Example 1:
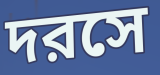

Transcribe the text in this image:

দরসে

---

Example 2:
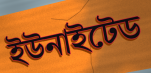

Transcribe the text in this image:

ইউনাইটেড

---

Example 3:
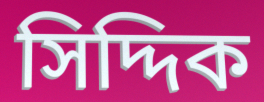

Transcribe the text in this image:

সিদ্দিক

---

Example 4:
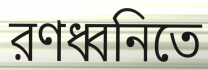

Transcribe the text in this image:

রণধ্বনিতে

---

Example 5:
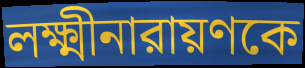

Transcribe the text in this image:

লক্ষ্মীনারায়ণকে